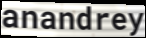
anandrey